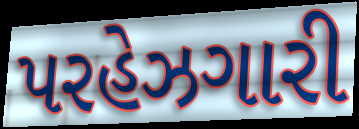
પરહેઝગારી